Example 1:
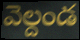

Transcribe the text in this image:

వెల్దండ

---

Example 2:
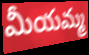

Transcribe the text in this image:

మీయమ్మ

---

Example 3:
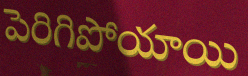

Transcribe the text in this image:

పెరిగిపోయాయి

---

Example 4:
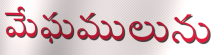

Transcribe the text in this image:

మేఘములును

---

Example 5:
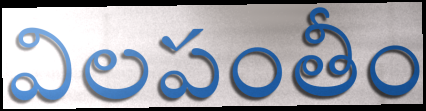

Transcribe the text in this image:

విలపంతీం